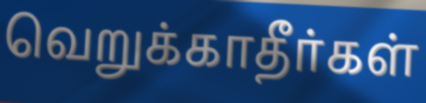
வெறுக்காதீர்கள்